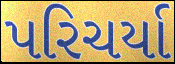
પરિચર્યા